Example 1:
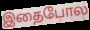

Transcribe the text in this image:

இதைபோல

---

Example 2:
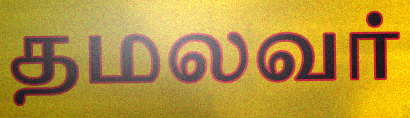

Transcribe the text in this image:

தமலவர்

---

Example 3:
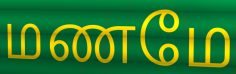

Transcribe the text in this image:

மணமே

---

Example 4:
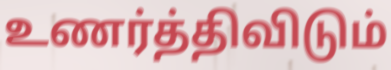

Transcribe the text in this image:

உணர்த்திவிடும்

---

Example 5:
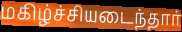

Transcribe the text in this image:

மகிழ்ச்சியடைந்தார்